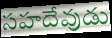
సహదేవుడు